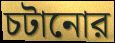
চটানোর